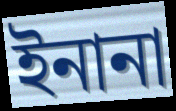
ইনানা